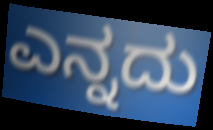
ಎನ್ನದು